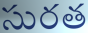
సురత